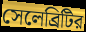
সেলেব্রিটির